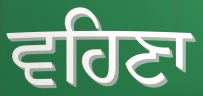
ਵਹਿਣਾ